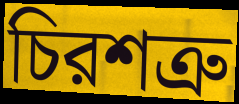
চিরশত্রু